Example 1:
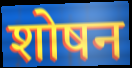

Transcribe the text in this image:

शोषन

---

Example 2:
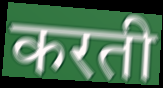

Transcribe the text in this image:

करती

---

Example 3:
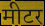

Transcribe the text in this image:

मीटर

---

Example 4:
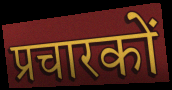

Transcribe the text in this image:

प्रचारकों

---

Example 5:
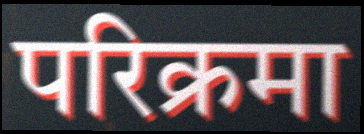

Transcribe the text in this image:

परिक्रमा